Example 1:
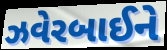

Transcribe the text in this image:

ઝવેરબાઈને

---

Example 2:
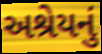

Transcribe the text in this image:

અશ્રેયનું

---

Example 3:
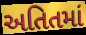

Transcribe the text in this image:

અતિતમાં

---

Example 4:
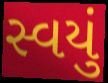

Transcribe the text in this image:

સ્વયું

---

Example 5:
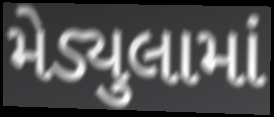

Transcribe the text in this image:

મેડ્યુલામાં